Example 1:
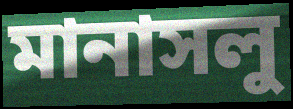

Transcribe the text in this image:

মানাসলু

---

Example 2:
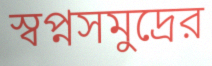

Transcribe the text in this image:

স্বপ্নসমুদ্রের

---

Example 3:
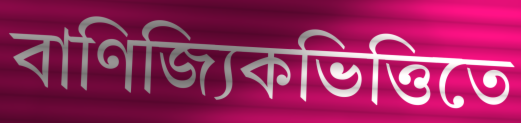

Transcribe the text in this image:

বাণিজ্যিকভিত্তিতে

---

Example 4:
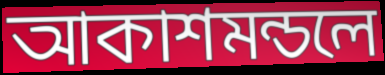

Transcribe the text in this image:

আকাশমন্ডলে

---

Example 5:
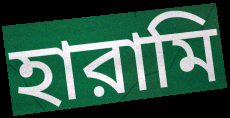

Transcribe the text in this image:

হারামি